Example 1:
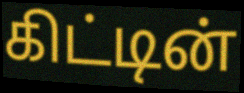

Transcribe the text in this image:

கிட்டின்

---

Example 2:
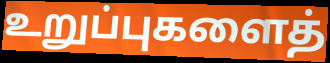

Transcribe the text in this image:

உறுப்புகளைத்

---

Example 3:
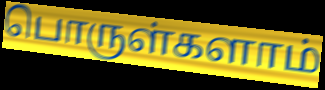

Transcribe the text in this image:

பொருள்களாம்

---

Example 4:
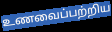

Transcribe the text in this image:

உணவைப்பற்றிய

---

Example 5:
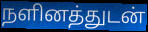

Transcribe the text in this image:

நளினத்துடன்